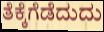
ತೆಕ್ಕೆಗೆಡೆದುದು